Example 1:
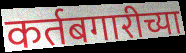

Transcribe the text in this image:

कर्तबगारीच्या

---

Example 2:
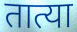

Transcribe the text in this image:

तात्या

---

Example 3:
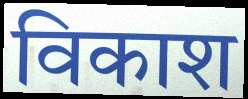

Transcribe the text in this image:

विकाश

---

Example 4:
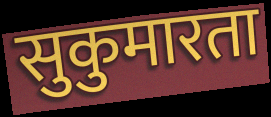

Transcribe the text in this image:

सुकुमारता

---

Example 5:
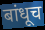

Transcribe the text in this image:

बांधूच